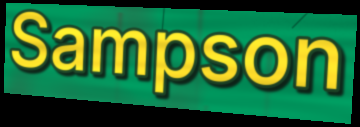
Sampson